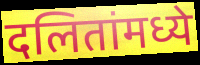
दलितांमध्ये